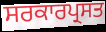
ਸਰਕਾਰਪ੍ਰਸਤ